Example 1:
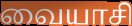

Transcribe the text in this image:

வையாசி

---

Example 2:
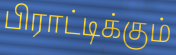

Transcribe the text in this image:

பிராட்டிக்கும்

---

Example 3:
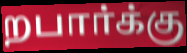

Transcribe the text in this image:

றபார்க்கு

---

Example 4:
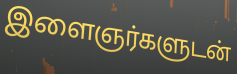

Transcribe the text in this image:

இளைஞர்களுடன்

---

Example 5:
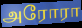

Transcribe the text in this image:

அரோரா